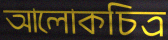
আলোকচিত্র